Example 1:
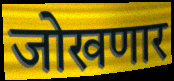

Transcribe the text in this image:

जोखणार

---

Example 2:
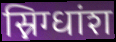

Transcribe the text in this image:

स्निग्धांश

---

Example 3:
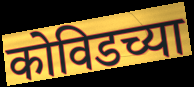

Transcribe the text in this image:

कोविडच्या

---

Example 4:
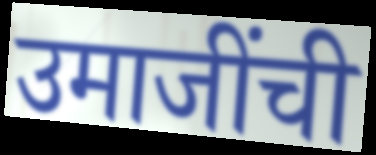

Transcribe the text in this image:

उमाजींची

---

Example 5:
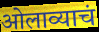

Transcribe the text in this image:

ओलाव्याचं